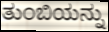
ತುಂಬಿಯನ್ನು